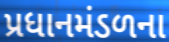
પ્રધાનમંડળના